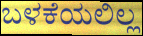
ಬಳಕೆಯಲಿಲ್ಲ